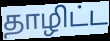
தாழிட்ட